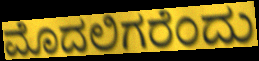
ಮೊದಲಿಗರೆಂದು